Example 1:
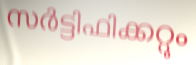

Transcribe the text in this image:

സർട്ടിഫിക്കറ്റും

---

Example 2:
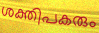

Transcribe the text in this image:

ശക്തിപകരും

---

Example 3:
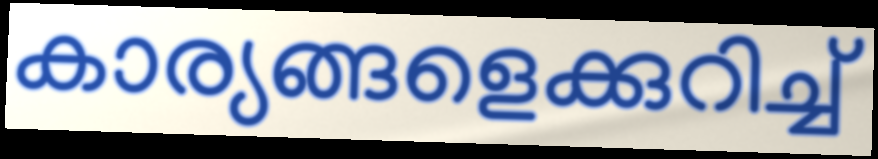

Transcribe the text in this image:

കാര്യങ്ങളെക്കുറിച്ച്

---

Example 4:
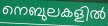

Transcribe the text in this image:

നെബുലകളിൽ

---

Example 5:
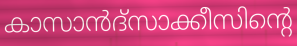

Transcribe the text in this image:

കാസാൻദ്സാക്കീസിന്റെ